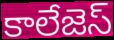
కాలేజెస్